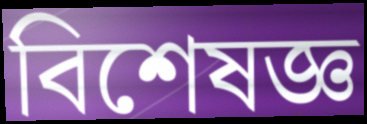
বিশেষজ্ঞ